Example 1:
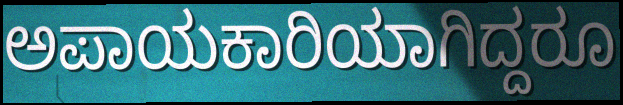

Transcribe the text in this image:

ಅಪಾಯಕಾರಿಯಾಗಿದ್ದರೂ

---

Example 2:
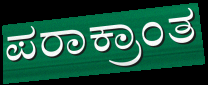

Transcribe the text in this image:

ಪರಾಕ್ರಾಂತ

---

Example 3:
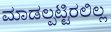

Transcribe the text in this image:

ಮಾಡಲ್ಪಟ್ಟಿರಲಿಲ್ಲ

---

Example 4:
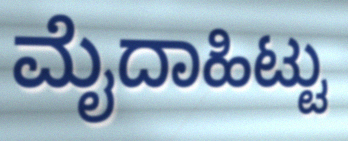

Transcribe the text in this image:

ಮೈದಾಹಿಟ್ಟು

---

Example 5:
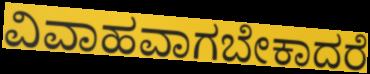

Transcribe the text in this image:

ವಿವಾಹವಾಗಬೇಕಾದರೆ